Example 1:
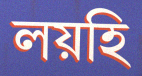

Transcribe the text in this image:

লয়হি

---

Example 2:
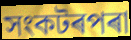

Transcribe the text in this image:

সংকটৰপৰা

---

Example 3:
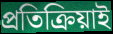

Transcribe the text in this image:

প্ৰতিক্ৰিয়াই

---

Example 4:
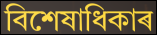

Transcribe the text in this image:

বিশেষাধিকাৰ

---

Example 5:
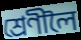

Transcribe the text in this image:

শ্ৰেণীলৈ